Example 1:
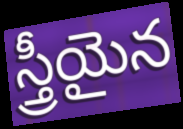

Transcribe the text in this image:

స్త్రీయైన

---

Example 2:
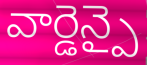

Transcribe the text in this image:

వార్డెన్పై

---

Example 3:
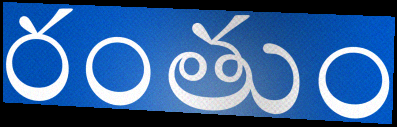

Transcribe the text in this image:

రంతుం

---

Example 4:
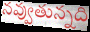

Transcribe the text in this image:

నవ్వుతున్నది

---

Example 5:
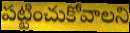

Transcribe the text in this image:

పట్టించుకోవాలని